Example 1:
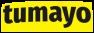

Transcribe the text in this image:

tumayo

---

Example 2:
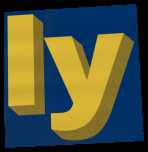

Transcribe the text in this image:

ly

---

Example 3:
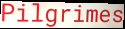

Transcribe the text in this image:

Pilgrimes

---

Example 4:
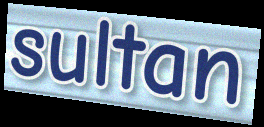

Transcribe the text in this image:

sultan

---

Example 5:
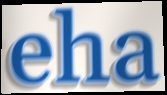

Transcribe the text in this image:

eha